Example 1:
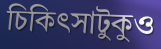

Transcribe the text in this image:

চিকিৎসাটুকুও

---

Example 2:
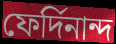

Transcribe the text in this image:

ফের্দিনান্দ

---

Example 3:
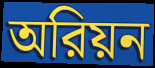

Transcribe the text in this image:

অরিয়ন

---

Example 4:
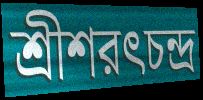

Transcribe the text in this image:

শ্রীশরৎচন্দ্র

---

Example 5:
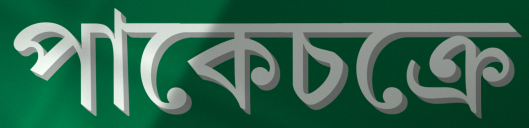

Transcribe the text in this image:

পাকেচক্রে